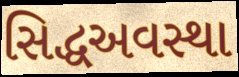
સિદ્ધઅવસ્થા